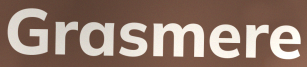
Grasmere